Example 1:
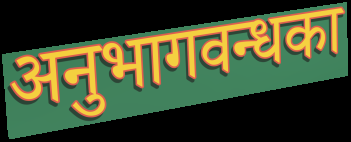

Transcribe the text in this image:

अनुभागवन्धका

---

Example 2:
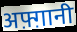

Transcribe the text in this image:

अफ़्ग़ानी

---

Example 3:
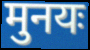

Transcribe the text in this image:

मुनयः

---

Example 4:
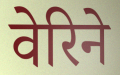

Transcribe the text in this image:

वेरिने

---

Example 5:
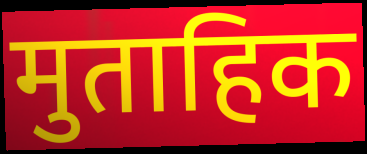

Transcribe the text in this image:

मुताहिक